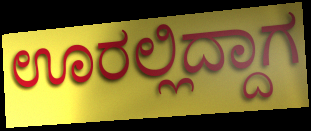
ಊರಲ್ಲಿದ್ದಾಗ